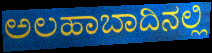
ಅಲಹಾಬಾದಿನಲ್ಲಿ